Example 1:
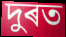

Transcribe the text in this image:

দুৰত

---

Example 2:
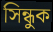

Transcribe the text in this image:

সিন্ধুক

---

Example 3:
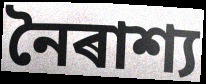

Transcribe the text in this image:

নৈৰাশ্য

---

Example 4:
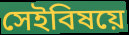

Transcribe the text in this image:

সেইবিষয়ে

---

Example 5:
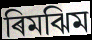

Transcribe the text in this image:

ৰিমঝিম